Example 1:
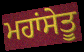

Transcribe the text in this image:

ਮਹਾਂਸੇਤੂ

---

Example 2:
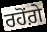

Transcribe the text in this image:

ਰਹੋਂਗ਼ੇ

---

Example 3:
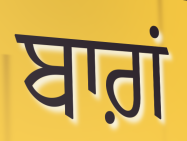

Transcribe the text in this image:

ਬਾਗ਼ਂ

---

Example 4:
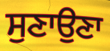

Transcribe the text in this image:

ਸੁਣਾਉਣਾ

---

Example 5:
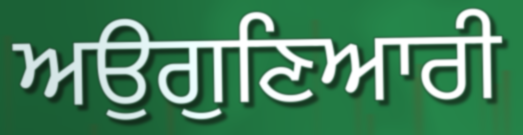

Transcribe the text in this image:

ਅਉਗੁਣਿਆਰੀ